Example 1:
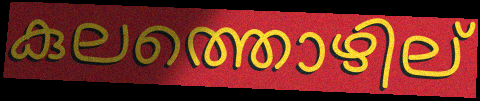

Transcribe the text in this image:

കുലത്തൊഴില്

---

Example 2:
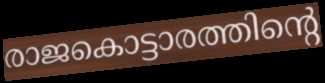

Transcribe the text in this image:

രാജകൊട്ടാരത്തിന്റെ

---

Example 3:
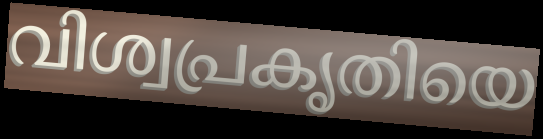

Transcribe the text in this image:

വിശ്വപ്രകൃതിയെ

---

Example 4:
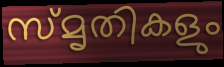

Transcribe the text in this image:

സ്മൃതികളും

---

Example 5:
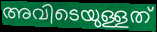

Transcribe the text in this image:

അവിടെയുള്ളത്